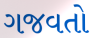
ગજવતો